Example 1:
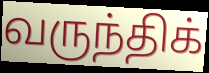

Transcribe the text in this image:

வருந்திக்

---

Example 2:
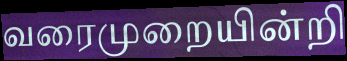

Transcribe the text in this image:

வரைமுறையின்றி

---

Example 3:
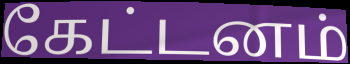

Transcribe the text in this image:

கேட்டனம்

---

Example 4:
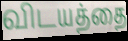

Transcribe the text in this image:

விடயத்தை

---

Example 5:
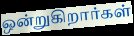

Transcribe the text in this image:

ஒன்றுகிறார்கள்